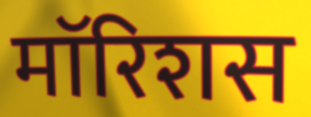
मॉरिशस